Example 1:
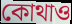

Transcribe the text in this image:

কোথাও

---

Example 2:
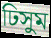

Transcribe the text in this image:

ঢিসুম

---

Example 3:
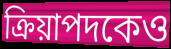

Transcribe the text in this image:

ক্রিয়াপদকেও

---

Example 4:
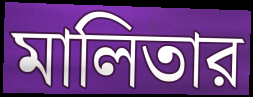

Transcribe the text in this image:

মালিতার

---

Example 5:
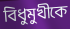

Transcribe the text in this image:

বিধুমুখীকে